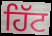
ਹਿੱਟ